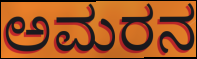
ಅಮರನ